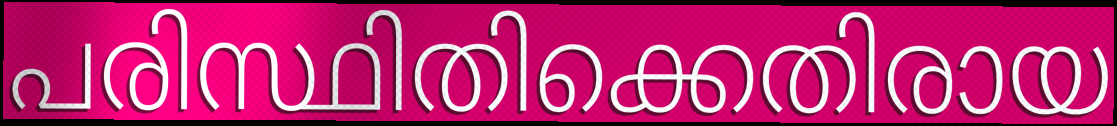
പരിസ്ഥിതിക്കെതിരായ